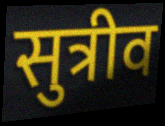
सुत्रीव